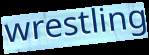
wrestling